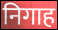
निगाह